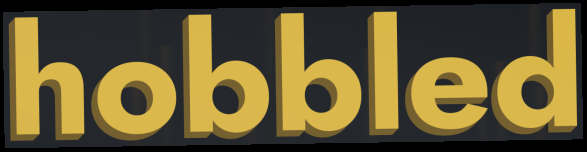
hobbled